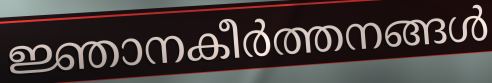
ജ്ഞാനകീർത്തനങ്ങൾ